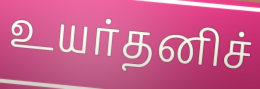
உயர்தனிச்